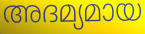
അദമ്യമായ